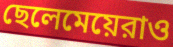
ছেলেমেয়েরাও